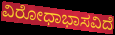
ವಿರೋಧಾಭಾಸವಿದೆ